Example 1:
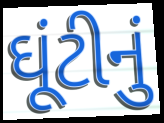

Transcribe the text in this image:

ઘૂંટીનું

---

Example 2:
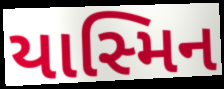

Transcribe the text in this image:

યાસ્મિન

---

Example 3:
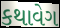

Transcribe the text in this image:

કથાવેગ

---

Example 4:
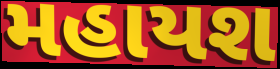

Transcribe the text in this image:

મહાયશ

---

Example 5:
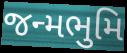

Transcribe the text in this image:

જન્મભુમિ